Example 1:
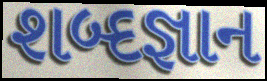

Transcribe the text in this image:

શબ્દજ્ઞાન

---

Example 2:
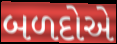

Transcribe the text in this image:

બળદોએ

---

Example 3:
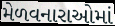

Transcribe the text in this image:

મેળવનારાઓમાં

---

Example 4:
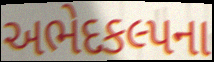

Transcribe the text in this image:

અભેદકલ્પના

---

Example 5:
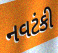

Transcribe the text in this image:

નવટંકી